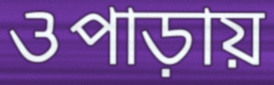
ওপাড়ায়